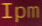
Ipm